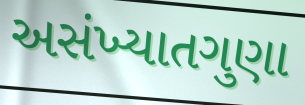
અસંખ્યાતગુણા